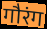
गौरंग